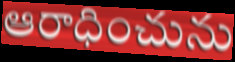
ఆరాధించును